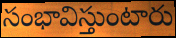
సంభావిస్తుంటారు